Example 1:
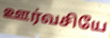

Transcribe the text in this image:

ஊர்வசியே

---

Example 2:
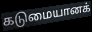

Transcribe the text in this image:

கடுமையானக்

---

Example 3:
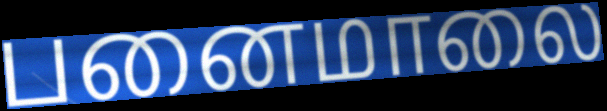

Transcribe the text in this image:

பனைமாலை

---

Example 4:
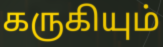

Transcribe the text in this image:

கருகியும்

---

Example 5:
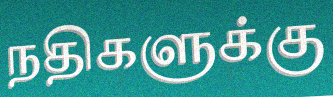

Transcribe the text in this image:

நதிகளுக்கு